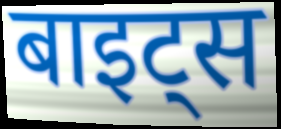
बाइट्स